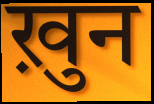
ख़ुन